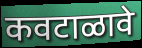
कवटाळावे